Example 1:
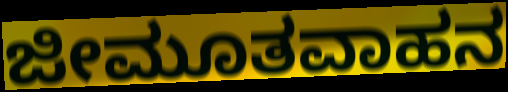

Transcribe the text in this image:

ಜೀಮೂತವಾಹನ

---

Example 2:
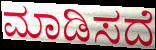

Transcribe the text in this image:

ಮಾಡಿಸದೆ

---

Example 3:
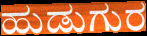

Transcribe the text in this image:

ಹುಡುಗುರ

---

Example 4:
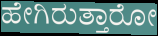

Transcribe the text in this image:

ಹೇಗಿರುತ್ತಾರೋ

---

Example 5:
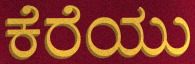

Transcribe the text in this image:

ಕೆರೆಯು